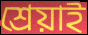
শ্ৰেয়াই